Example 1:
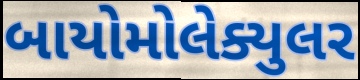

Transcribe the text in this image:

બાયોમોલેક્યુલર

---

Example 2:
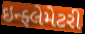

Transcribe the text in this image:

ઇન્ફ્લેમેટરી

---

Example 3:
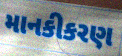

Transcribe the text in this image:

માનકીકરણ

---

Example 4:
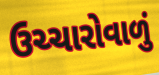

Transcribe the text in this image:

ઉચ્ચારોવાળું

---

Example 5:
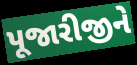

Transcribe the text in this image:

પૂજારીજીને